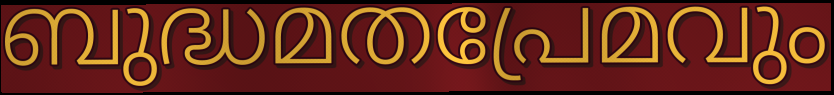
ബുദ്ധമതപ്രേമവും